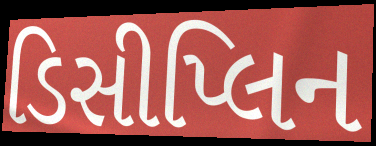
ડિસીપ્લિન